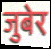
जुबेर